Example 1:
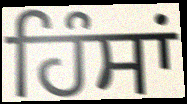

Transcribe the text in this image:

ਹਿੰਸਾਂ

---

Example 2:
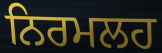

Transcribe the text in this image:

ਨਿਰਮਲਹ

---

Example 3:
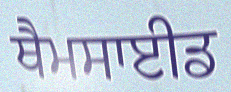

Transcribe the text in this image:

ਥੈਮਸਾਈਡ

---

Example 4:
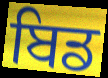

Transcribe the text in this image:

ਬਿਡ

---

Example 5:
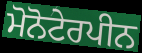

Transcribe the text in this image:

ਮੋਨੋਟੇਰਪੀਨ